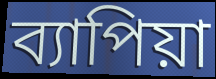
ব্যাপিয়া